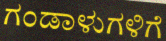
ಗಂಡಾಳುಗಳಿಗೆ